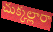
చుక్కల్లారా